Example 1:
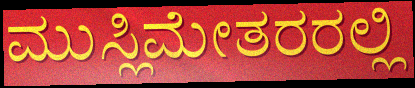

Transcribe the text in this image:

ಮುಸ್ಲಿಮೇತರರಲ್ಲಿ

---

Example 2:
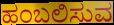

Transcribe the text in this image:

ಹಂಬಲಿಸುವ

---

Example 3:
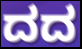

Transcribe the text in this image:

ದದ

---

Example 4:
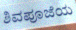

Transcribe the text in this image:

ಶಿವಪೂಜೆಯ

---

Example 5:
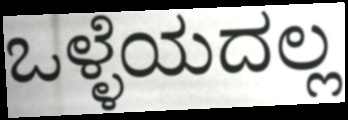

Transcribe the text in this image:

ಒಳ್ಳೆಯದಲ್ಲ